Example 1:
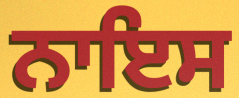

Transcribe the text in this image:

ਨਾਇਸ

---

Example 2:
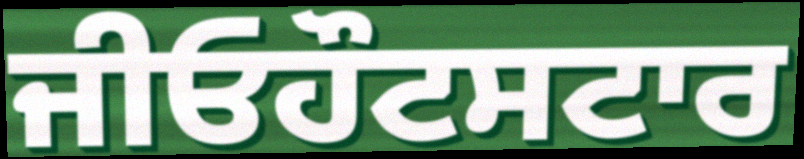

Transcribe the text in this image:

ਜੀਓਹੌਟਸਟਾਰ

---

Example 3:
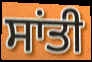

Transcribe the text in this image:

ਸਾਂਤੀ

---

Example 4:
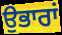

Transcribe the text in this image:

ਉਭਾਰਾਂ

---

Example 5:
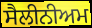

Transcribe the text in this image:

ਸੈਲੀਨੀਅਮ